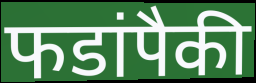
फडांपैकी